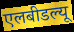
एलबीडल्यू